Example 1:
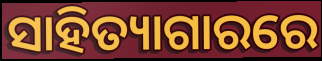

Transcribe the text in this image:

ସାହିତ୍ୟାଗାରରେ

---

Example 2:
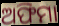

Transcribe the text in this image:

ଅଫିମା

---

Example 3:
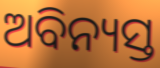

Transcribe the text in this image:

ଅବିନ୍ୟସ୍ତ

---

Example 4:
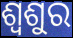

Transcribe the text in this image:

ଶ୍ଵଶୁର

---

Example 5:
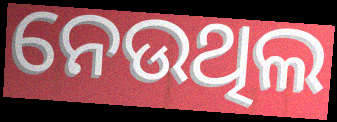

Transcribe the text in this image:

ନେଉଥିଲ